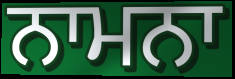
ਨਾਮਨਾ